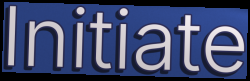
Initiate